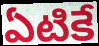
ఏటికే